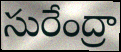
సురేంద్రా